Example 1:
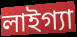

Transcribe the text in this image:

লাইগ্যা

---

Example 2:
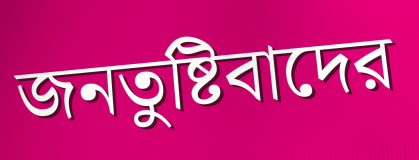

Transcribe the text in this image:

জনতুষ্টিবাদের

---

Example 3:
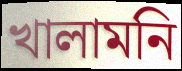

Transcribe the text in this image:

খালামনি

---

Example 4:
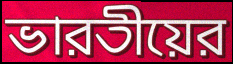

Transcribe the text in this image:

ভারতীয়ের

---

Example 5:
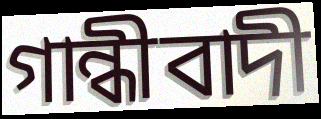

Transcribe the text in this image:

গান্ধীবাদী